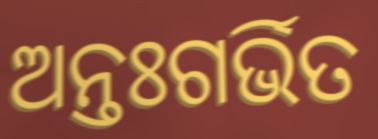
ଅନ୍ତଃଗର୍ଭିତ